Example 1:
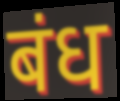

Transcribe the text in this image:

बंध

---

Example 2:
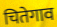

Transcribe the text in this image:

चितेगाव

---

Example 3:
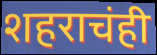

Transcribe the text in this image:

शहराचंही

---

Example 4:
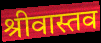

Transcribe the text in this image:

श्रीवास्तव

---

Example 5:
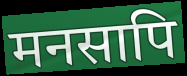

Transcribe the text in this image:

मनसापि